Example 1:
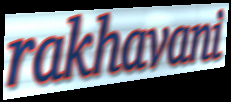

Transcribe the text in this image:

rakhavani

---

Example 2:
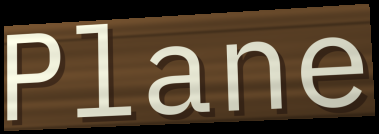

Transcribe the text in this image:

Plane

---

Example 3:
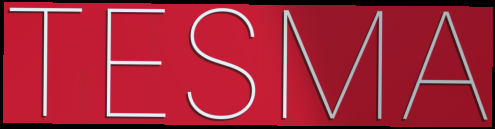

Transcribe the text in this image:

TESMA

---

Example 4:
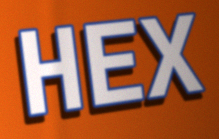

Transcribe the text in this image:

HEX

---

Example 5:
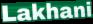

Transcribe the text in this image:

Lakhani